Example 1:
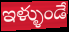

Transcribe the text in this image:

ఇళ్ళుండే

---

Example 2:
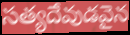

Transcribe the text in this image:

సత్యదేవుడవైన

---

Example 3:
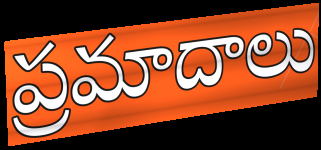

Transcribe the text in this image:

ప్రమాదాలు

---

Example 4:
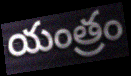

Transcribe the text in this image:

యంత్రం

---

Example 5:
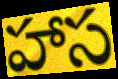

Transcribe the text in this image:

హాస